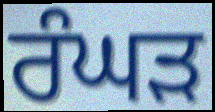
ਰੰਘੜ